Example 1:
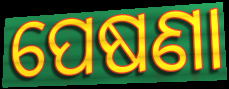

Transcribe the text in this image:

ପେଷଣା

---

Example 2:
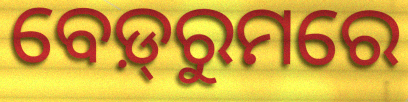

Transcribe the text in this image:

ବେଡ଼୍‌ରୁମରେ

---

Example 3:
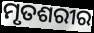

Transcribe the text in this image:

ମୃତଶରୀର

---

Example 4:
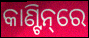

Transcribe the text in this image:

କାଣ୍ଟିନ୍‌ରେ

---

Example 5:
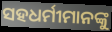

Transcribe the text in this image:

ସହଧର୍ମୀମାନଙ୍କୁ